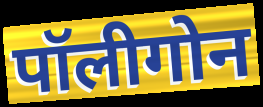
पॉलीगोन